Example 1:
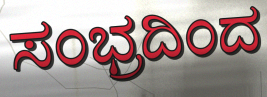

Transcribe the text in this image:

ಸಂಭ್ರದಿಂದ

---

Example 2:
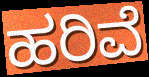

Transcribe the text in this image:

ಹರಿವೆ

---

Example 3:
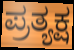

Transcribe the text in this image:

ಪ್ರತ್ಯಕ್ಷ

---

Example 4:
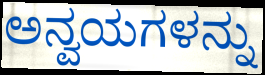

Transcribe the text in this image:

ಅನ್ವಯಗಳನ್ನು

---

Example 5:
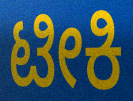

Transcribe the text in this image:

ಟೀಕಿ